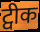
ट्वीक